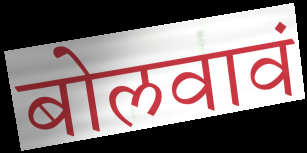
बोलवावं